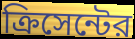
ক্রিসেন্টের